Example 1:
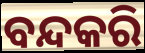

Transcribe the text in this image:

ବନ୍ଦକରି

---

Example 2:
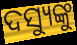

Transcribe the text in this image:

ଦସ୍ୟୁଙ୍କୁ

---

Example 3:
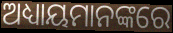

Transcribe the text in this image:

ଅଧ୍ୟାୟମାନଙ୍କରେ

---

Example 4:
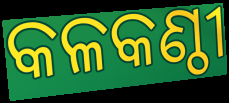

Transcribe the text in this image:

କଳକଣ୍ଠୀ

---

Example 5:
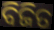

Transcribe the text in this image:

ବିଜିତ